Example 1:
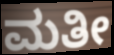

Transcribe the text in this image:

ಮತೀ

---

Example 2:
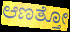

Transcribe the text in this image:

ಆಣತ್ತೋ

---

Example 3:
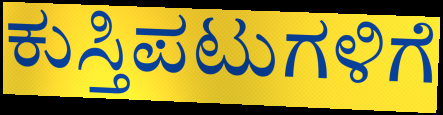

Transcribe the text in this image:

ಕುಸ್ತಿಪಟುಗಳಿಗೆ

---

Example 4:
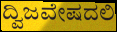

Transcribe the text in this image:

ದ್ವಿಜವೇಷದಲಿ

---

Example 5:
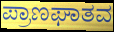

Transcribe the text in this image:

ಪ್ರಾಣಘಾತವ